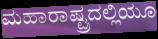
ಮಹಾರಾಷ್ಟ್ರದಲ್ಲಿಯೂ